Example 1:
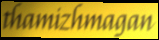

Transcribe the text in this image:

thamizhmagan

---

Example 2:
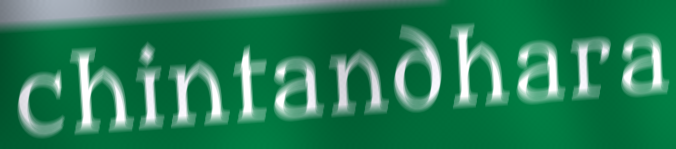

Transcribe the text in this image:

chintandhara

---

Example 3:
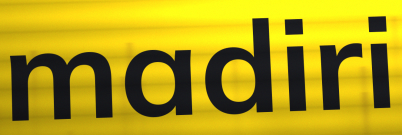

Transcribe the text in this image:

madiri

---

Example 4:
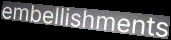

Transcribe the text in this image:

embellishments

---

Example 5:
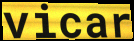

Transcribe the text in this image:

vicar